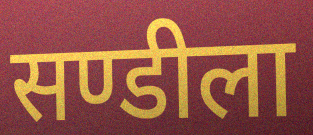
सण्डीला